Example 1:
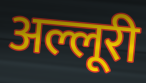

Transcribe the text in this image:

अल्लूरी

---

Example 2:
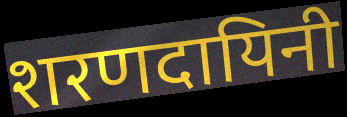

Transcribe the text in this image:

शरणदायिनी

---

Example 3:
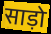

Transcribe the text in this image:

साड़ो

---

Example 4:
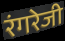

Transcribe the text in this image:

रंगरेजी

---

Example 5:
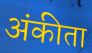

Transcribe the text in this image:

अंकीता